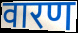
वारण